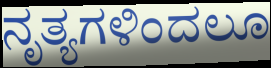
ನೃತ್ಯಗಳಿಂದಲೂ